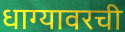
धाग्यावरची